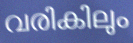
വരികിലും